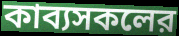
কাব্যসকলের